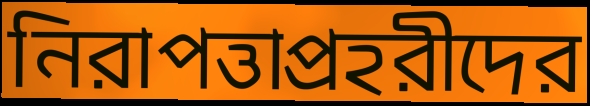
নিরাপত্তাপ্রহরীদের